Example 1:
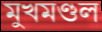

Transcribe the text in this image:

মুখমণ্ডল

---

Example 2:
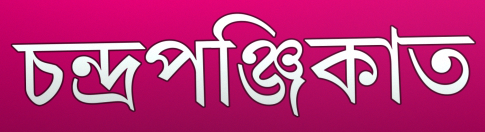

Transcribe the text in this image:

চন্দ্ৰপঞ্জিকাত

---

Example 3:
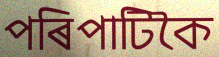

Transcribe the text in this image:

পৰিপাটিকৈ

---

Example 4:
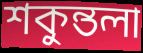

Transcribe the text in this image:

শকুন্তলা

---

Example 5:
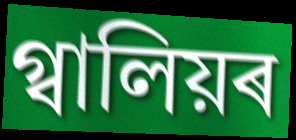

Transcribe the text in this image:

গ্বালিয়ৰ